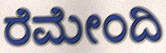
ರೆಮೇಂದಿ